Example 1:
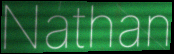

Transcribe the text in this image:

Nathan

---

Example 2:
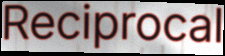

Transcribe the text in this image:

Reciprocal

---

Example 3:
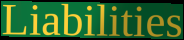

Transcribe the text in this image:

Liabilities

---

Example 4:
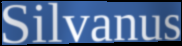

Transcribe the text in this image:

Silvanus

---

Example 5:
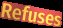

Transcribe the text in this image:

Refuses